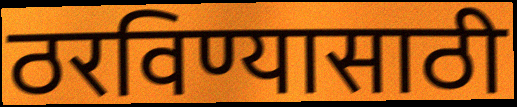
ठरविण्यासाठी